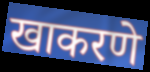
खाकरणे